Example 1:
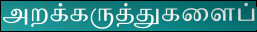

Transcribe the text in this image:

அறக்கருத்துகளைப்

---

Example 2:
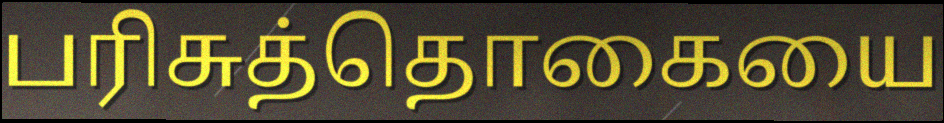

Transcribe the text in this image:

பரிசுத்தொகையை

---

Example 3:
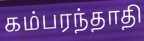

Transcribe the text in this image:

கம்பரந்தாதி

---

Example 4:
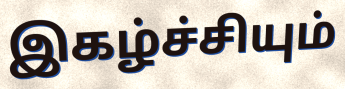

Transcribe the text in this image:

இகழ்ச்சியும்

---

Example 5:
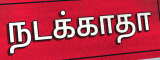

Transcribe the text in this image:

நடக்காதா